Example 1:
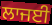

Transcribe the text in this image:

ਲਾਜਈ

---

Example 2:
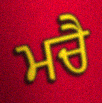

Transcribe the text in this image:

ਮਚੈ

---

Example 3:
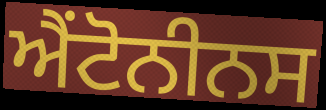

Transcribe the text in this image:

ਐਂਟੋਨੀਨਸ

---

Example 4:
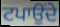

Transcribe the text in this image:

ਟਪਾਉਂਦੇ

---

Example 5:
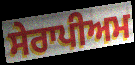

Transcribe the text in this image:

ਸੇਰਾਪੀਅਮ